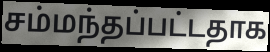
சம்மந்தப்பட்டதாக